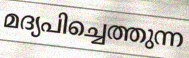
മദ്യപിച്ചെത്തുന്ന